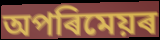
অপৰিমেয়ৰ